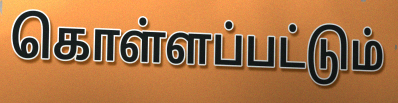
கொள்ளப்பட்டும்